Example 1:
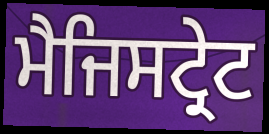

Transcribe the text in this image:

ਮੈਜਿਸਟ੍ਰੇਟ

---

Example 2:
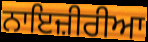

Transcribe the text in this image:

ਨਾਇਜ਼ੀਰੀਆ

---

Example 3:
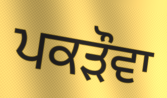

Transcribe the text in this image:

ਪਕੜੌਵਾ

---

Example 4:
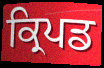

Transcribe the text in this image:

ਕ੍ਰਿਪਡ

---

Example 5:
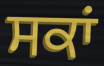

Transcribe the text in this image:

ਸਕਾਂ